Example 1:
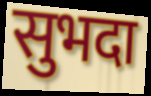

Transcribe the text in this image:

सुभदा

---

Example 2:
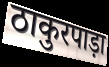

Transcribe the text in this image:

ठाकुरपाड़ा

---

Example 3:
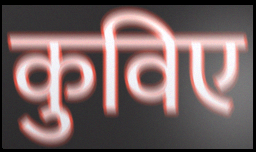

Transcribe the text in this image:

कुविए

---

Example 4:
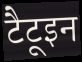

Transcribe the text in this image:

टैटूइन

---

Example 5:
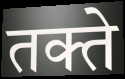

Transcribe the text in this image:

तक्ते